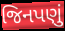
જિનપણું